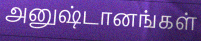
அனுஷ்டானங்கள்